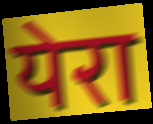
येरा